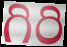
గిరి